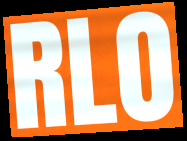
RLO